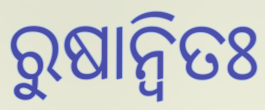
ରୁଷାନ୍ଵିତଃ